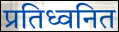
प्रतिध्वनित